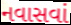
નવાસવાં